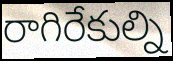
రాగిరేకుల్ని